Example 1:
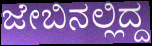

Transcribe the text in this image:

ಜೇಬಿನಲ್ಲಿದ್ದ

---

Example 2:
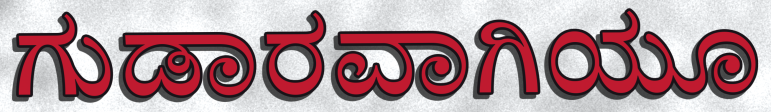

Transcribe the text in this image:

ಗುಡಾರವಾಗಿಯೂ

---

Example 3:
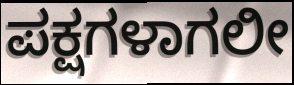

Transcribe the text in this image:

ಪಕ್ಷಗಳಾಗಲೀ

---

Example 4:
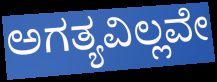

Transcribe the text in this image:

ಅಗತ್ಯವಿಲ್ಲವೇ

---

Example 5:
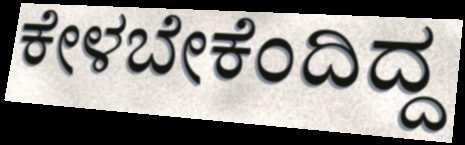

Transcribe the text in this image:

ಕೇಳಬೇಕೆಂದಿದ್ದ